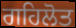
ਗਹਿਲੋਤ